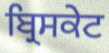
ਬ੍ਰਿਸਕੇਟ